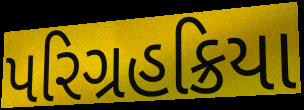
પરિગ્રહક્રિયા